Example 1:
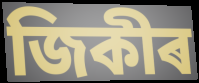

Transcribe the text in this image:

জিকীৰ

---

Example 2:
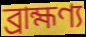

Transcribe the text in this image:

ব্ৰাহ্মণ্য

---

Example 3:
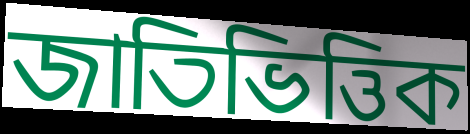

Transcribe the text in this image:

জাতিভিত্তিক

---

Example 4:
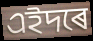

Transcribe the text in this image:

এইদৰে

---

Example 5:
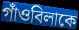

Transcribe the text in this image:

গাঁওবিলাকে